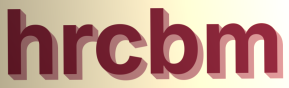
hrcbm